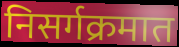
निसर्गक्रमात